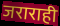
जराराही